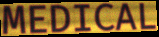
MEDICAL